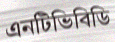
এনটিভিবিডি